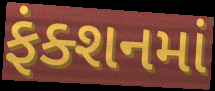
ફંક્શનમાં